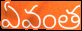
ఏవంత